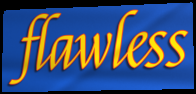
flawless